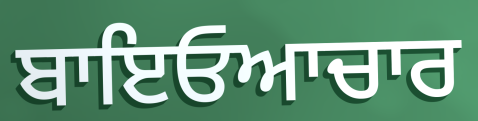
ਬਾਇਓਆਚਾਰ